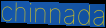
chinnada